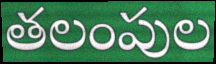
తలంపుల